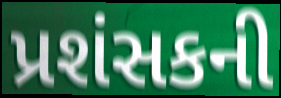
પ્રશંસકની